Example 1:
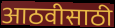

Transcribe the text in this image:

आठवीसाठी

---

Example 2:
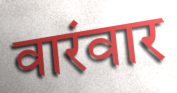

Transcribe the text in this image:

वारंवार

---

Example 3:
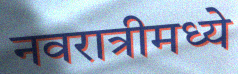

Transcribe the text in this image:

नवरात्रीमध्ये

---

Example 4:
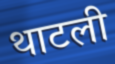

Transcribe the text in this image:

थाटली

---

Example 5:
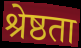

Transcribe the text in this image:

श्रेष्ठता